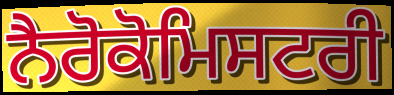
ਨੈਰੋਕੋਮਿਸਟਰੀ